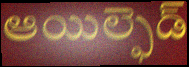
ఆయిల్ఫెడ్